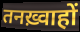
तनख़्वाहों